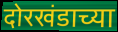
दोरखंडाच्या